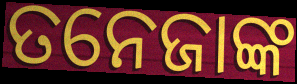
ତନେଜାଙ୍କ